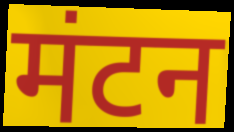
मंटन